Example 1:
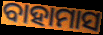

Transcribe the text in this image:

ବାହାମାସ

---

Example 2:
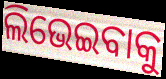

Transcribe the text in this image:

ଲିଭେଇବାକୁ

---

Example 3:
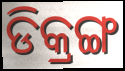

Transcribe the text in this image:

ଡିକ୍ରଙ୍ଗ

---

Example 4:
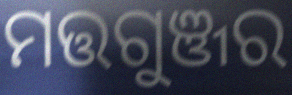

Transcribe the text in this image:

ମତ୍ତଗୁଞ୍ଜର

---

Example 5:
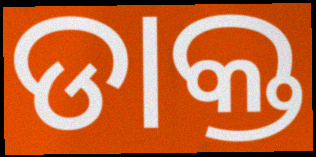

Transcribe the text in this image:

ଡାକ୍ତ